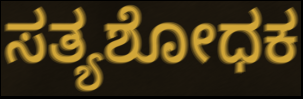
ಸತ್ಯಶೋಧಕ